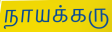
நாயக்கரு